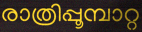
രാത്രിപ്പൂമ്പാറ്റ